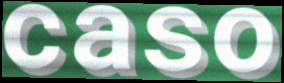
caso